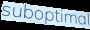
suboptimal